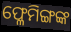
ଫ୍ଳେମିଙ୍ଗଙ୍କ